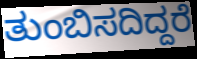
ತುಂಬಿಸದಿದ್ದರೆ